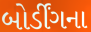
બોર્ડીંગના